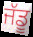
ਜੱਡੂ